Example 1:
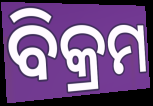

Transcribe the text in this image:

ବିକ୍ରମ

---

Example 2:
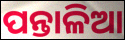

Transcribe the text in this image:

ପନ୍ତାଳିଆ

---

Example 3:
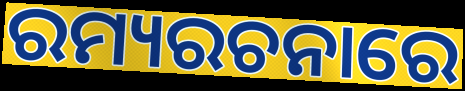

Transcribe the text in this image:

ରମ୍ୟରଚନାରେ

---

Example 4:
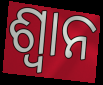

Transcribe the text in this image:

ଶ୍ୱାନ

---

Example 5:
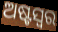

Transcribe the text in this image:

ଅଷ୍ଟସ୍ୱର